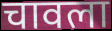
चावला